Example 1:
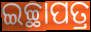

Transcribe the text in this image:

ଇଚ୍ଛାପତ୍ର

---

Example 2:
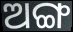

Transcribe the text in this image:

ଅଙ୍ଗ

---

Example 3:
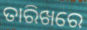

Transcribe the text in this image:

ତାରିଖରେ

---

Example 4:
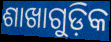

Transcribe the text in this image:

ଶାଖାଗୁଡ଼ିକ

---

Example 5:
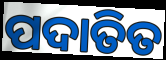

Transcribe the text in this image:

ପଦାତିତ